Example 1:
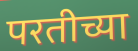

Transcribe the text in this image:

परतीच्या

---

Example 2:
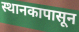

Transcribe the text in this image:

स्थानकापासून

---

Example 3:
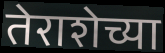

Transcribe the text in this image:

तेराशेच्या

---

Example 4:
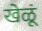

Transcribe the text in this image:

खेळूं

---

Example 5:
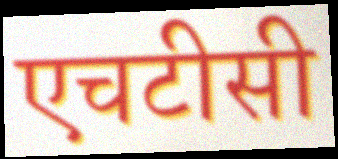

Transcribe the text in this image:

एचटीसी